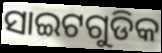
ସାଇଟଗୁଡିକ